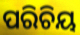
ପରିଚିୟ